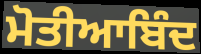
ਮੋਤੀਆਬਿੰਦ